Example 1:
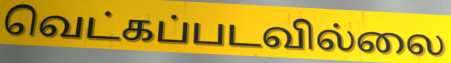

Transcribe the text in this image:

வெட்கப்படவில்லை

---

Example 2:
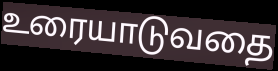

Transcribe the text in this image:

உரையாடுவதை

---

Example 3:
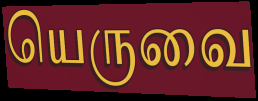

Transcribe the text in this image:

யெருவை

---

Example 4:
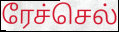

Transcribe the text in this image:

ரேச்செல்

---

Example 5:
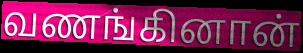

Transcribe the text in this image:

வணங்கினான்